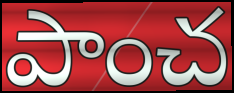
పాంచ